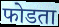
फोडता